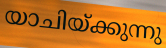
യാചിയ്ക്കുന്നു